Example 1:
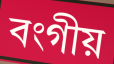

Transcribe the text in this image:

বংগীয়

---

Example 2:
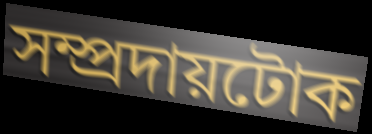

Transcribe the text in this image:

সম্প্ৰদায়টোক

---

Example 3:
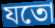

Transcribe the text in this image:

যতো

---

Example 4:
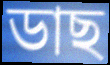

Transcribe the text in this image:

ডাছ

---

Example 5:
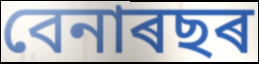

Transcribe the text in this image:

বেনাৰছৰ